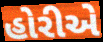
હોરીએ